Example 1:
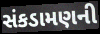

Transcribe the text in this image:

સંકડામણની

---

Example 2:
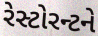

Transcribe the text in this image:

રેસ્ટોરન્ટને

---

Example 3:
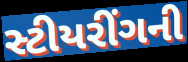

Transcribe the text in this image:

સ્ટીયરીંગની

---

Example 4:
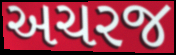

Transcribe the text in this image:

અચરજ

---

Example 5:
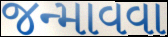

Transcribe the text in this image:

જન્માવવા